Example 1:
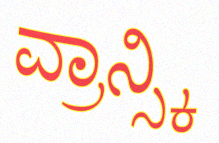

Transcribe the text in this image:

ವ್ರಾನ್ಸ್ಕಿ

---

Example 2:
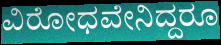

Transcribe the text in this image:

ವಿರೋಧವೇನಿದ್ದರೂ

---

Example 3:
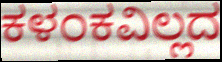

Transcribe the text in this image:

ಕಳಂಕವಿಲ್ಲದ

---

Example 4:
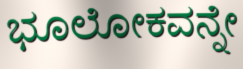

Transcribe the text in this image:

ಭೂಲೋಕವನ್ನೇ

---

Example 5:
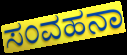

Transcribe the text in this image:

ಸಂವಹನಾ